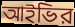
আইভির